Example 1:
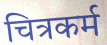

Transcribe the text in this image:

चित्रकर्म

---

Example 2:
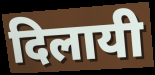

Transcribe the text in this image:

दिलायी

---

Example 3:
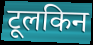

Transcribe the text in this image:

टूलकिन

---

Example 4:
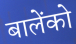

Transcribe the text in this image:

बालेंको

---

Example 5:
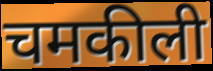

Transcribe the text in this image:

चमकीली